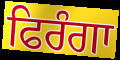
ਫਿਰੰਗਾ